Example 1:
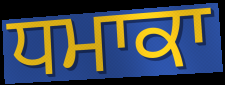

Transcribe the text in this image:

ਧਮਾਕਾ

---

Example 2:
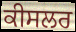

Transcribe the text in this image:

ਕੀਸਲਰ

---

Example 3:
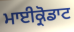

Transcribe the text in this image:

ਮਾਈਕ੍ਰੋਡਾਟ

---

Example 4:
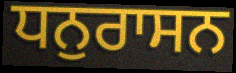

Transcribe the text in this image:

ਧਨੁਰਾਸਨ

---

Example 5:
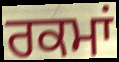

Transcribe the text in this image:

ਰਕਮਾਂ